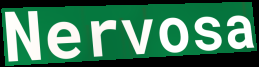
Nervosa